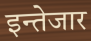
इन्तेजार